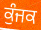
ਕੁੰਜਕ